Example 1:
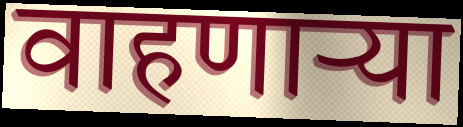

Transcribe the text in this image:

वाहणाऱ्या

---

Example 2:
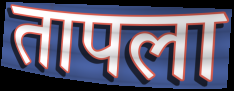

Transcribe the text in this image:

तापला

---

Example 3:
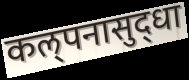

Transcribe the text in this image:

कल्पनासुद्धा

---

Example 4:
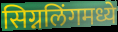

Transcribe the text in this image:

सिग्नलिंगमध्ये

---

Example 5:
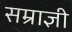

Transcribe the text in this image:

सम्राज्ञी